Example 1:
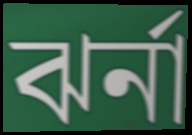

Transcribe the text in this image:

ঝর্না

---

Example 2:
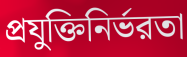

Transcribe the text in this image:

প্রযুক্তিনির্ভরতা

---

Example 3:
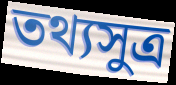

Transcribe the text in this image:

তথ্যসুত্র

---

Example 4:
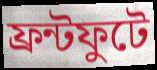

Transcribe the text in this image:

ফ্রন্টফুটে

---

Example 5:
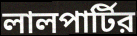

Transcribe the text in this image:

লালপার্টির